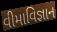
વીમાવિજ્ઞાન